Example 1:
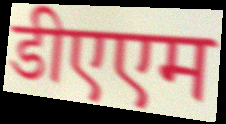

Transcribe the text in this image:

डीएएम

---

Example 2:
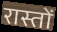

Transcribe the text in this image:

रास्‍तों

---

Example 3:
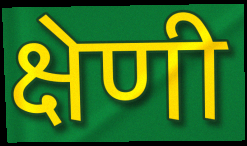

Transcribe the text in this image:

क्षेणी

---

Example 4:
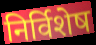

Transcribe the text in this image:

निर्विशेष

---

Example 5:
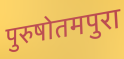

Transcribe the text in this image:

पुरुषोतमपुरा